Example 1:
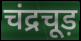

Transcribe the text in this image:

चंद्रचूड़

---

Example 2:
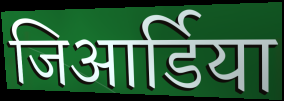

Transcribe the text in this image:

जिआर्डिया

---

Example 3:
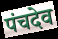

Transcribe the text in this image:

पंचदेव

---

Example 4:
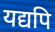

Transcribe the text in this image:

यद्यपि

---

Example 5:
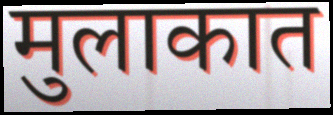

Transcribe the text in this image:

मुलाकात